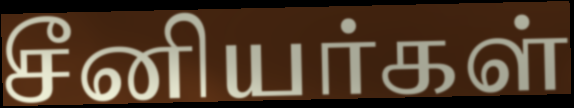
சீனியர்கள்